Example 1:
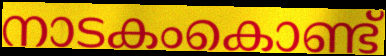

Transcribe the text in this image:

നാടകംകൊണ്ട്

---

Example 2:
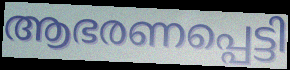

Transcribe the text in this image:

ആഭരണപ്പെട്ടി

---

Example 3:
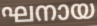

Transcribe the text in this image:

ഘനായ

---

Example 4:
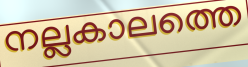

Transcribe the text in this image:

നല്ലകാലത്തെ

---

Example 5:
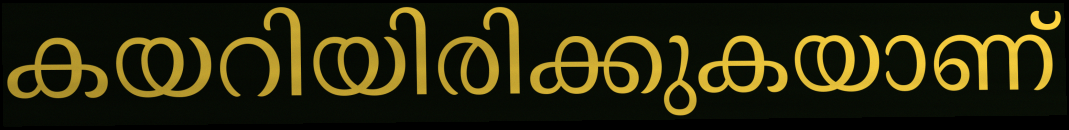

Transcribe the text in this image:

കയറിയിരിക്കുകയാണ്